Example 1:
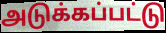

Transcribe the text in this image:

அடுக்கப்பட்டு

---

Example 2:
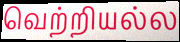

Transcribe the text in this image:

வெற்றியல்ல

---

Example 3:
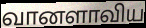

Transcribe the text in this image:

வானளாவிய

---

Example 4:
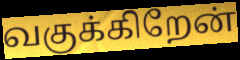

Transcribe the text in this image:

வகுக்கிறேன்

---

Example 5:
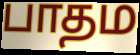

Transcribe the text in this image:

பாதம